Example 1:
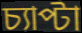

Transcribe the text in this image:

চ্যাপ্টা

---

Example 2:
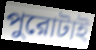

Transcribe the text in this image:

পুরোটাই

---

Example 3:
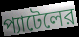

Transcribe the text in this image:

প্যাটেলের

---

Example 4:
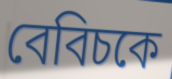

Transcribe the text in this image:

বেবিচকে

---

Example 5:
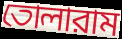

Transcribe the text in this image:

তোলারাম